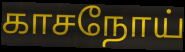
காசநோய்